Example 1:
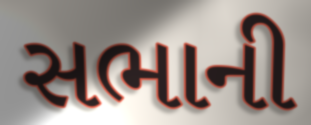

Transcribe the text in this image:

સભાની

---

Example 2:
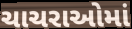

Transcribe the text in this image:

ચાચરાઓમાં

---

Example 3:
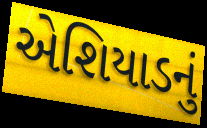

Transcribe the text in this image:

એશિયાડનું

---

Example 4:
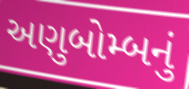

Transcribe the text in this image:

અણુબોમ્બનું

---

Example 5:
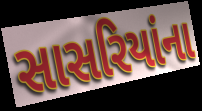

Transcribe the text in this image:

સાસરિયાંના